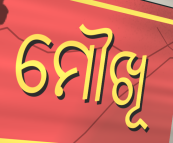
ମୌଖୂ